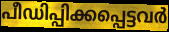
പീഡിപ്പിക്കപ്പെട്ടവർ